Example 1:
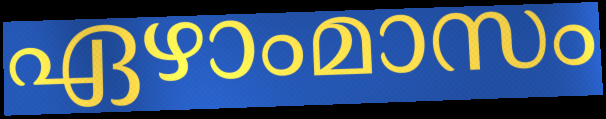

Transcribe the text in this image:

ഏഴാംമാസം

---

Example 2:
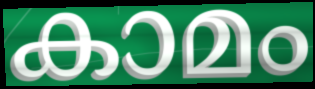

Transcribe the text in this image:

കാമം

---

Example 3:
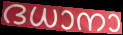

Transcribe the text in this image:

ദധാനാ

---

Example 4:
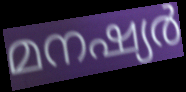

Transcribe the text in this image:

മനഷ്യർ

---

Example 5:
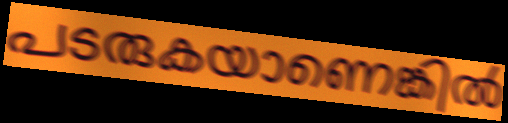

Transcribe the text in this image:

പടരുകയാണെങ്കിൽ